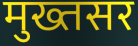
मुख्तसर